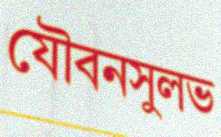
যৌবনসুলভ